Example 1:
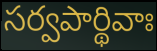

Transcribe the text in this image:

సర్వపార్థివాః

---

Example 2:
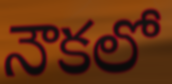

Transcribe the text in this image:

నౌకలో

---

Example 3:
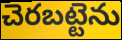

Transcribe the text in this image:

చెరబట్టెను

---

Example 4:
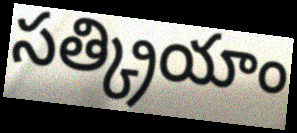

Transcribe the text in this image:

సత్క్రియాం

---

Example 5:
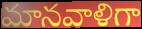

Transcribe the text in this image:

మానవాళిగా